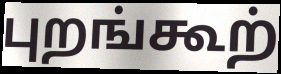
புறங்கூற்